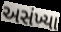
અસંખ્યા